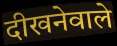
दीखनेवाले